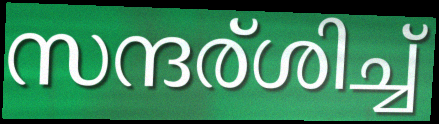
സന്ദര്ശിച്ച്